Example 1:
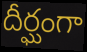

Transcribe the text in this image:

దీర్ఘంగా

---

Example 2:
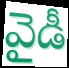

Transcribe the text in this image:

వైడీ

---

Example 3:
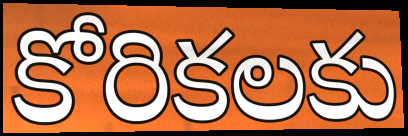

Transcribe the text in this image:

కోరికలకు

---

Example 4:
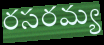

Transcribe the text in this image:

రసరమ్య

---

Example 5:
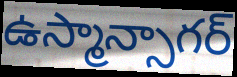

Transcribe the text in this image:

ఉస్మాన్సాగర్